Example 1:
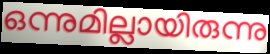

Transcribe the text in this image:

ഒന്നുമില്ലായിരുന്നു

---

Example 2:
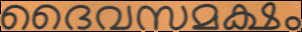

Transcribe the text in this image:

ദൈവസമക്ഷം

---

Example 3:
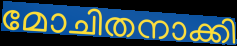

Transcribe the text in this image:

മോചിതനാക്കി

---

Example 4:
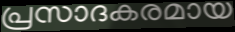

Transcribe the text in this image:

പ്രസാദകരമായ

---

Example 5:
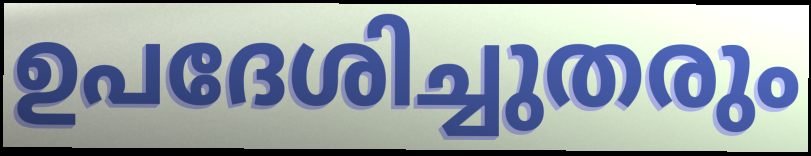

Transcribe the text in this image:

ഉപദേശിച്ചുതരും